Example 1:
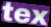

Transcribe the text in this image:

tex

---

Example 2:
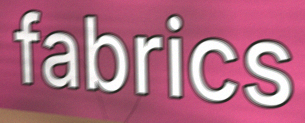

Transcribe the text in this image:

fabrics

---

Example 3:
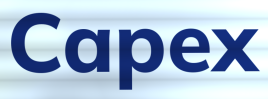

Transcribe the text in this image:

Capex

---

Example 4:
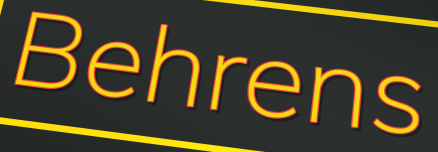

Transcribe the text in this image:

Behrens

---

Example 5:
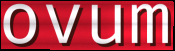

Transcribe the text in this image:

ovum